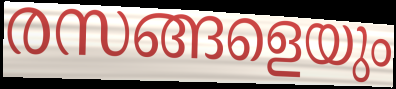
രസങ്ങളെയും